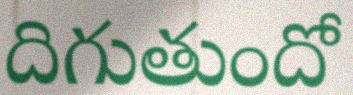
దిగుతుందో